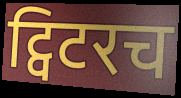
ट्विटरच